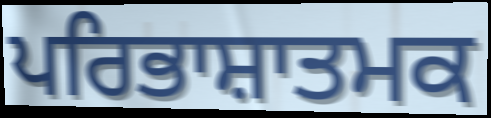
ਪਰਿਭਾਸ਼ਾਤਮਕ